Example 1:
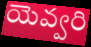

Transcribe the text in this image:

యెవ్వరి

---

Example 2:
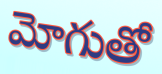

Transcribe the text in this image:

మోగుతో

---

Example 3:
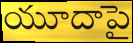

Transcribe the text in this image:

యూదాపై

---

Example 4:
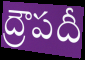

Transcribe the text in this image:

ద్రౌపదీ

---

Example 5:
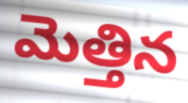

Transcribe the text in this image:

మెత్తిన